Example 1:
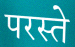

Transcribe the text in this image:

परस्ते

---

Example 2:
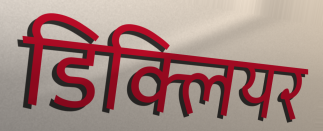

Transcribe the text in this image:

डिक्लियर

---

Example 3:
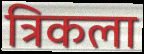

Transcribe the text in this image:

त्रिकला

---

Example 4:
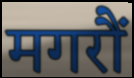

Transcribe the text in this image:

मगरौं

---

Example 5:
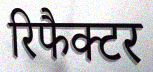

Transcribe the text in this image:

रिफैक्टर